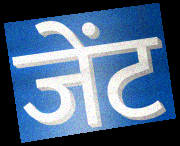
जेंट